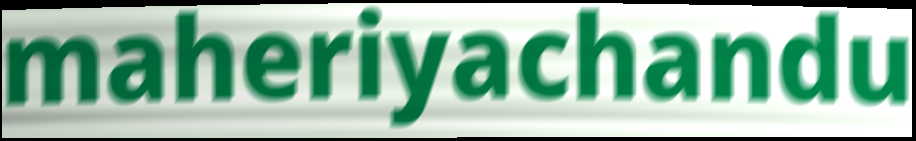
maheriyachandu